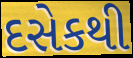
દસેકથી